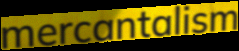
mercantalism